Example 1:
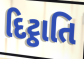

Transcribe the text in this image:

દિટ્ઠાતિ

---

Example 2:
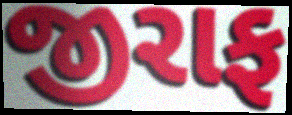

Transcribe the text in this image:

જીરાફ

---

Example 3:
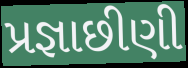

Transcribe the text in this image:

પ્રજ્ઞાછીણી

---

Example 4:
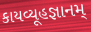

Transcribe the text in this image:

કાયવ્યૂહજ્ઞાનમ્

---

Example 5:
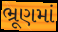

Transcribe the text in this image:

ભ્રૂણમાં